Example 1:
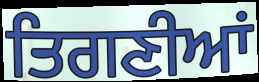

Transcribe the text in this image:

ਤਿਗਣੀਆਂ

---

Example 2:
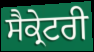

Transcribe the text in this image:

ਸੈਕ੍ਰੇਟਰੀ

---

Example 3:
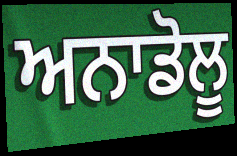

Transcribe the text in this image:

ਅਨਾਡੋਲੂ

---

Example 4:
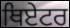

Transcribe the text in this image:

ਥਿਏਟਰ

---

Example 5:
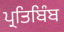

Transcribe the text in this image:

ਪ੍ਰਤਿਬਿੰਬ